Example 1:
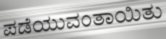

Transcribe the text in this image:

ಪಡೆಯುವಂತಾಯಿತು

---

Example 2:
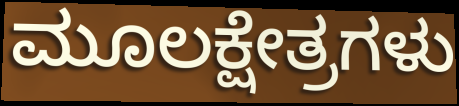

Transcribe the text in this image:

ಮೂಲಕ್ಷೇತ್ರಗಳು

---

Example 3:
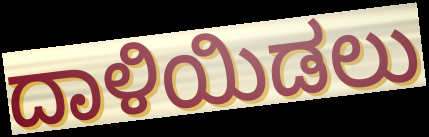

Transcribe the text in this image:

ದಾಳಿಯಿಡಲು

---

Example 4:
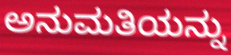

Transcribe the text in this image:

ಅನುಮತಿಯನ್ನು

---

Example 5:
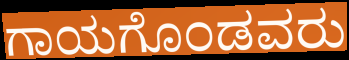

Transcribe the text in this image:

ಗಾಯಗೊಂಡವರು